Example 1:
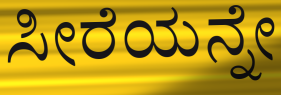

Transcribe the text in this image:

ಸೀರೆಯನ್ನೇ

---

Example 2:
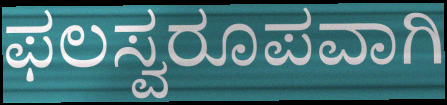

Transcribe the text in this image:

ಫಲಸ್ವರೂಪವಾಗಿ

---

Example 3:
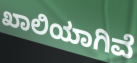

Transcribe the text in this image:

ಖಾಲಿಯಾಗಿವೆ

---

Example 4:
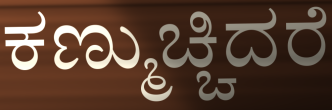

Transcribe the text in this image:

ಕಣ್ಮುಚ್ಚಿದರೆ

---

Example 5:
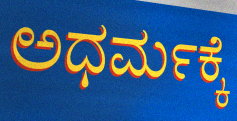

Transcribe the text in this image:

ಅಧರ್ಮಕ್ಕೆ